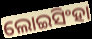
ଲୋଇସିଂହା